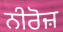
ਨੀਰੋਜ਼